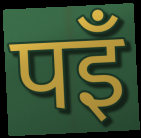
पइँ